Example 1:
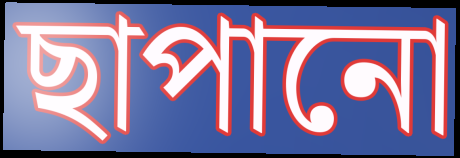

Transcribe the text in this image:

ছাপানো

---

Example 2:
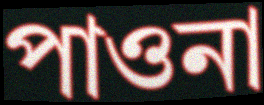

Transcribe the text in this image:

পাওনা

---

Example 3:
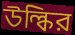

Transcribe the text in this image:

উল্কির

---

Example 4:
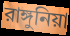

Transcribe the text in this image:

রাঙ্গুনিয়া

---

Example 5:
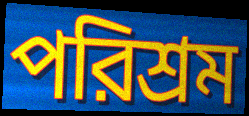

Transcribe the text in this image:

পরিশ্রম